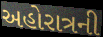
અહોરાત્રની